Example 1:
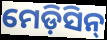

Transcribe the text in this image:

ମେଡ଼ିସିନ୍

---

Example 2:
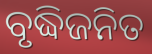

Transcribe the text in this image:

ବୃଦ୍ଧିଜନିତ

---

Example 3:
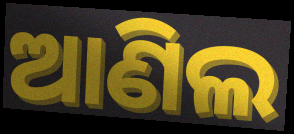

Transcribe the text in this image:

ଆଣିଲ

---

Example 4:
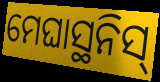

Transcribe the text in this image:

ମେଘାସ୍ଥନିସ୍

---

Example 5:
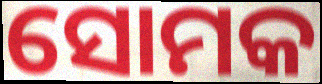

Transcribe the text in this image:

ସୋମକ